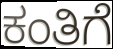
ಕಂತಿಗೆ